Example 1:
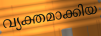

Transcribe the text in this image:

വ്യക്തമാക്കിയ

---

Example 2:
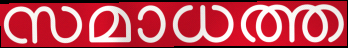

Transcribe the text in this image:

സമാധത്ത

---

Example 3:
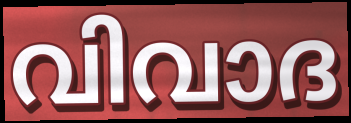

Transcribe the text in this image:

വിവാദ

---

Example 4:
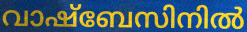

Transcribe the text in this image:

വാഷ്ബേസിനിൽ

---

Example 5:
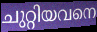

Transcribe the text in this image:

ചുറ്റിയവനെ